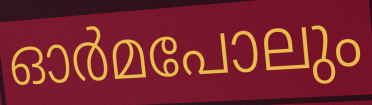
ഓർമപോലും